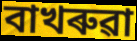
বাখৰুৱা